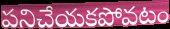
పనిచేయకపోవటం